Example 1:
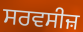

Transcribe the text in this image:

ਸਰਵਸੀਜ਼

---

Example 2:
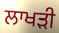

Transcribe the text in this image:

ਲਾਖੜੀ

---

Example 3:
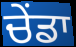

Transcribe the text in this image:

ਚੇਂਡਾ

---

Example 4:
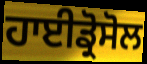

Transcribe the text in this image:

ਹਾਈਡ੍ਰੋਸੋਲ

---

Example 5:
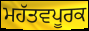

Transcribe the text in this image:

ਮਹੱਤਵਪੂਰਕ